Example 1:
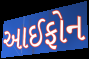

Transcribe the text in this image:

આઈફોન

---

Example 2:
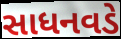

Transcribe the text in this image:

સાધનવડે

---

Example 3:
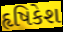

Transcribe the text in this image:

હૃષિકેશ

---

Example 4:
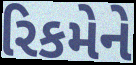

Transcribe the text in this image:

રિકમેને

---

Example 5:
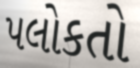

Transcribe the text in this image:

પલોકતો